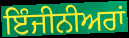
ਇੰਜੀਨੀਅਰਾਂ